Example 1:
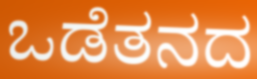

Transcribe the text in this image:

ಒಡೆತನದ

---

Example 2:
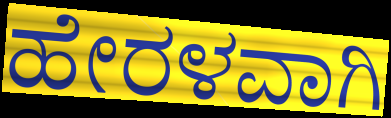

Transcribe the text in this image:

ಹೇರಳವಾಗಿ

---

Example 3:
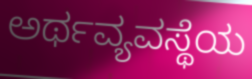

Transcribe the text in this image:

ಅರ್ಥವ್ಯವಸ್ಥೆಯ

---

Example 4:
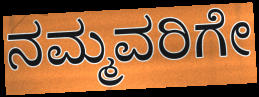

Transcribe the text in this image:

ನಮ್ಮವರಿಗೇ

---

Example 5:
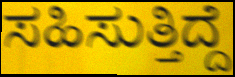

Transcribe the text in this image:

ಸಹಿಸುತ್ತಿದ್ದೆ